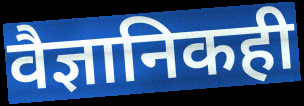
वैज्ञानिकही